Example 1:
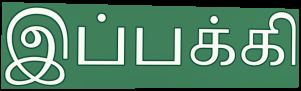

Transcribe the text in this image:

இப்பக்கி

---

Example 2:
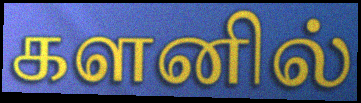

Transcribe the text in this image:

களனில்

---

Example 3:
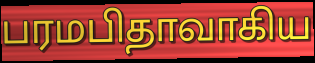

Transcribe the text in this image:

பரமபிதாவாகிய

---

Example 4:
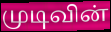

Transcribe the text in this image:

முடிவின்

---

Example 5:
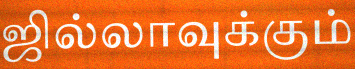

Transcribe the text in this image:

ஜில்லாவுக்கும்